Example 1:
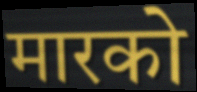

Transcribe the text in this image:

मारको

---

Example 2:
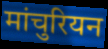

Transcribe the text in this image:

मांचुरियन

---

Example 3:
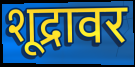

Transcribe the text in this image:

शूद्रावर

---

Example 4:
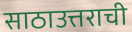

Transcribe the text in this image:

साठाउत्तराची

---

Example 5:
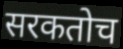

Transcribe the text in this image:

सरकतोच